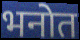
भनोत